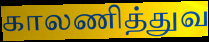
காலணித்துவ